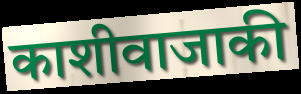
काशीवाजाकी